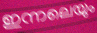
ഇന്നലെയും